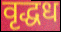
वृद्धध